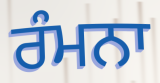
ਰੰਮਨਾ